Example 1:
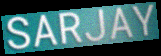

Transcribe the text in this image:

SARJAY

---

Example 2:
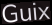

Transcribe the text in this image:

Guix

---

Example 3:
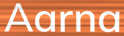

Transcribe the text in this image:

Aarna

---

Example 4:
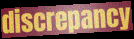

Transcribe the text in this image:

discrepancy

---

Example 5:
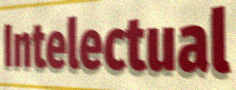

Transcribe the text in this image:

Intelectual